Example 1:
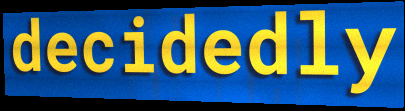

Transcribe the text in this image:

decidedly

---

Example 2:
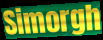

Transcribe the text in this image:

Simorgh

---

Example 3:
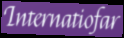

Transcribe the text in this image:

Internatiofar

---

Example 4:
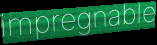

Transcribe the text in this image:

impregnable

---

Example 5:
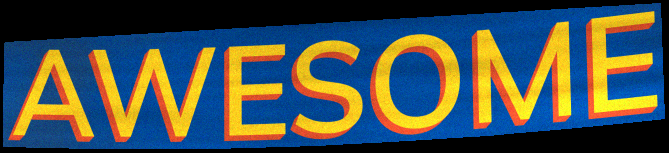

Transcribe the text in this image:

AWESOME